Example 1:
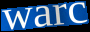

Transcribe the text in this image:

warc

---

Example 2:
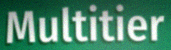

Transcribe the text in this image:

Multitier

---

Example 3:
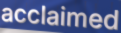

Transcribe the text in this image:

acclaimed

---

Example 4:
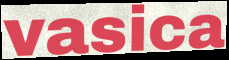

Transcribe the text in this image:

vasica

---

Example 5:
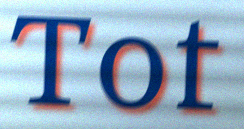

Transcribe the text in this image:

Tot